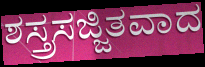
ಶಸ್ತ್ರಸಜ್ಜಿತವಾದ